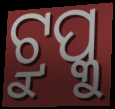
ଟ୍ରୁପ୍କୁ